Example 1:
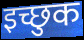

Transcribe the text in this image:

इच्छुक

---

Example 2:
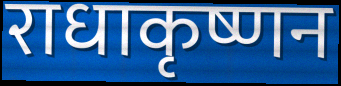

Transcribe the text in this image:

राधाकृष्णन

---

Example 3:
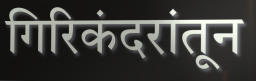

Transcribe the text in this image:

गिरिकंदरांतून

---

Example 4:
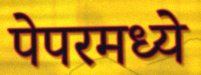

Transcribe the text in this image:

पेपरमध्ये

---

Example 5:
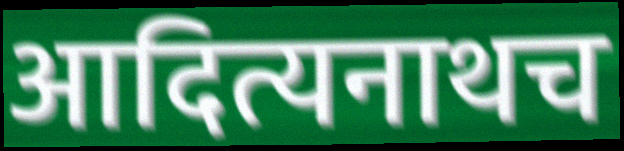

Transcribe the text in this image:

आदित्यनाथच